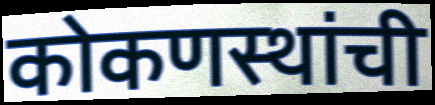
कोकणस्थांची